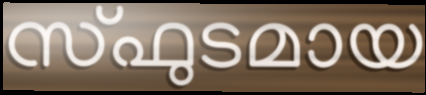
സ്ഫുടമായ